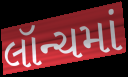
લૉન્ચમાં